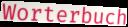
Worterbuch